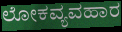
ಲೋಕವ್ಯವಹಾರ